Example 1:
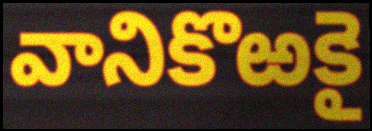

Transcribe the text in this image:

వానికొఱకై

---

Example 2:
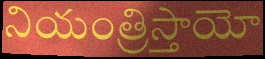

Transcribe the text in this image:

నియంత్రిస్తాయో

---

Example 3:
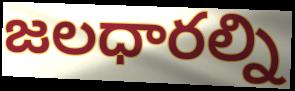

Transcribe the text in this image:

జలధారల్ని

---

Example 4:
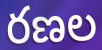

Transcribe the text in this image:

రణల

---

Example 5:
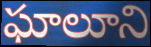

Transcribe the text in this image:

ఘాలూని